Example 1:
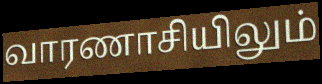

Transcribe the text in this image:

வாரணாசியிலும்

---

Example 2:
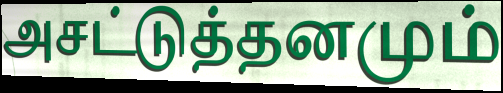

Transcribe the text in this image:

அசட்டுத்தனமும்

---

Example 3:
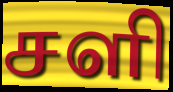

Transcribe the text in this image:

சளி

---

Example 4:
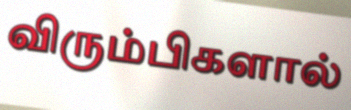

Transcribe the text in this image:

விரும்பிகளால்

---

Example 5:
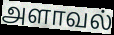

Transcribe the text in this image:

அளாவல்